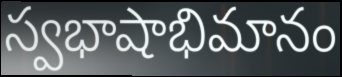
స్వభాషాభిమానం